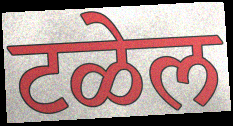
टळेल